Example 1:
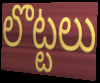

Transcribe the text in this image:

లొట్టలు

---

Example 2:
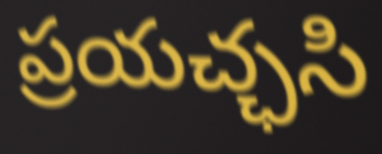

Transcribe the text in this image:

ప్రయచ్ఛసి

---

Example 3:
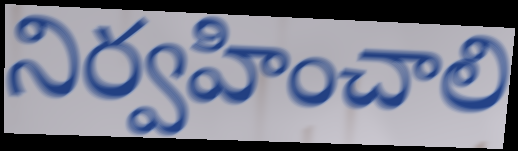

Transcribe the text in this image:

నిర్వహించాలి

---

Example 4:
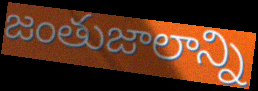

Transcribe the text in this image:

జంతుజాలాన్ని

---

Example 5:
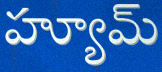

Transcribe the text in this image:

హ్యూమ్